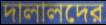
দালালদের